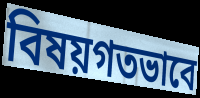
বিষয়গতভাবে